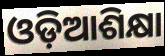
ଓଡ଼ିଆଶିକ୍ଷା